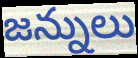
జన్నులు